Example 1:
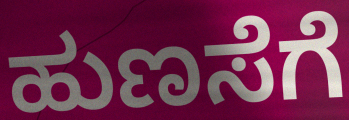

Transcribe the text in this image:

ಹುಣಸೆಗೆ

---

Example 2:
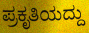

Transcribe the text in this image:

ಪ್ರಕೃತಿಯದ್ದು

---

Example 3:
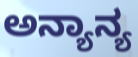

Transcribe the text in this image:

ಅನ್ಯಾನ್ಯ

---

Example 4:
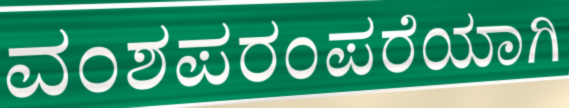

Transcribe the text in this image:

ವಂಶಪರಂಪರೆಯಾಗಿ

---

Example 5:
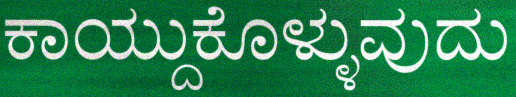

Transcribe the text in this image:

ಕಾಯ್ದುಕೊಳ್ಳುವುದು